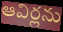
ఆవిర్లను